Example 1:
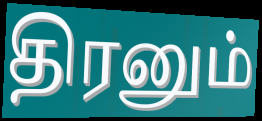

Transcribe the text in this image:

திரனும்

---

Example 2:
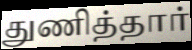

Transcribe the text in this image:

துணித்தார்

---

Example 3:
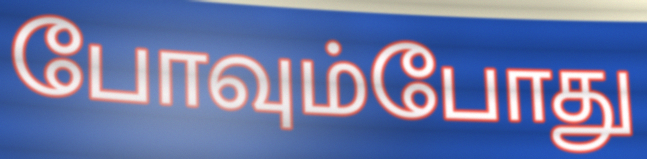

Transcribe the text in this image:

போவும்போது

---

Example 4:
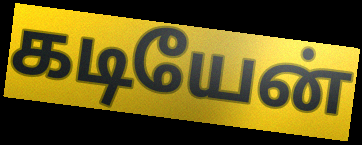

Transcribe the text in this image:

கடியேன்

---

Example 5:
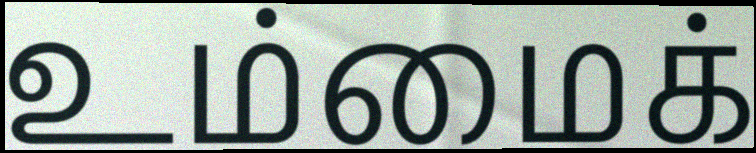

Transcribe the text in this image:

உம்மைக்